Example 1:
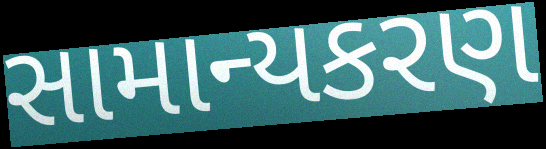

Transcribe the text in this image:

સામાન્યકરણ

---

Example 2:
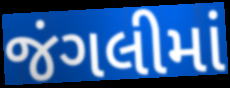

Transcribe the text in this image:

જંગલીમાં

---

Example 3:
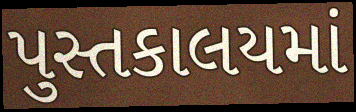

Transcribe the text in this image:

પુસ્તકાલયમાં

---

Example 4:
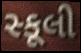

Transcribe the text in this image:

સ્કૂલી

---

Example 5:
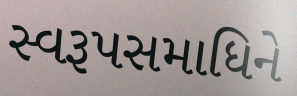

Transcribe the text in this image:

સ્વરૂપસમાધિને